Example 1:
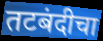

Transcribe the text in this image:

तटबंदीचा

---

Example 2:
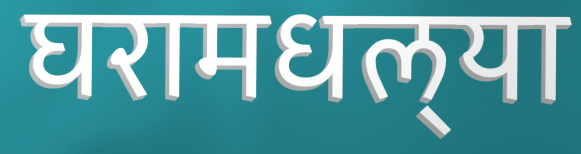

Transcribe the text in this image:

घरामधल्या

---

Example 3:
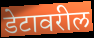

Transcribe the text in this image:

डेटावरील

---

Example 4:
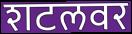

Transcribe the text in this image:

शटलवर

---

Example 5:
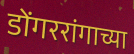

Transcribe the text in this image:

डोंगररांगाच्या